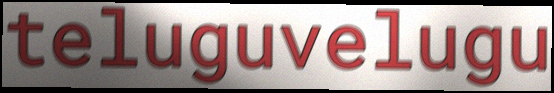
teluguvelugu